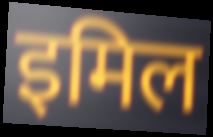
इमिल